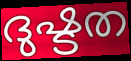
ദുഷ്ടത